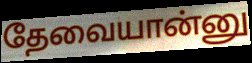
தேவையான்னு